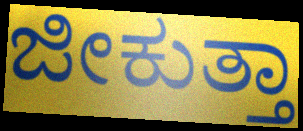
ಜೀಕುತ್ತಾ